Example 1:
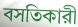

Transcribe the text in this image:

বসতিকারী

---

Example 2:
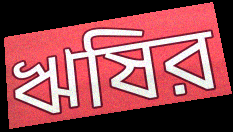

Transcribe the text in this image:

ঋষির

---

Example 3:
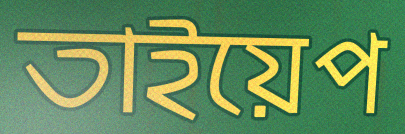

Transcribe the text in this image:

তাইয়েপ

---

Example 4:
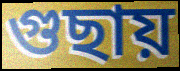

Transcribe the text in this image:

গুছায়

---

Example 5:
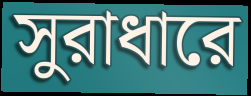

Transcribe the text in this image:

সুরাধারে